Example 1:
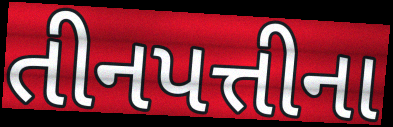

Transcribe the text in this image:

તીનપત્તીના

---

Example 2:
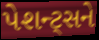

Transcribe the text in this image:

પેશન્ટ્સને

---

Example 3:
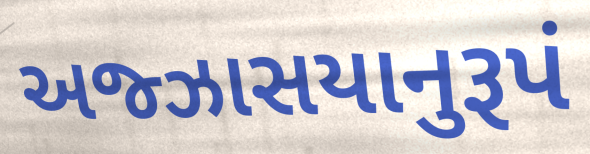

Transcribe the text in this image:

અજ્ઝાસયાનુરૂપં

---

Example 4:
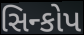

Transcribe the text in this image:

સિન્કોપ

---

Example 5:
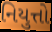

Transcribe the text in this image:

નિયુત્તો